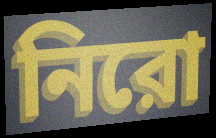
নিরো